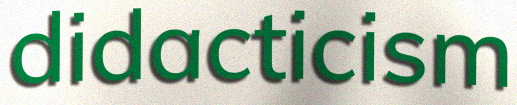
didacticism